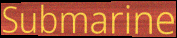
Submarine